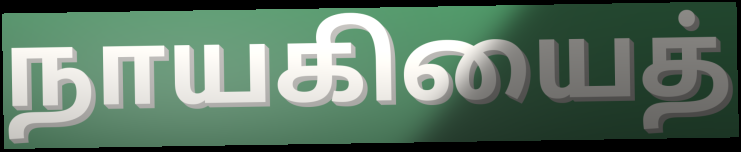
நாயகியைத்